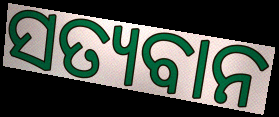
ସତ୍ୟବାନ